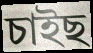
চাইছ